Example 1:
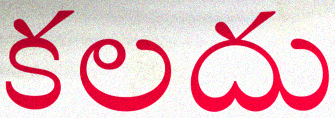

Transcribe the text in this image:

కలదు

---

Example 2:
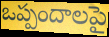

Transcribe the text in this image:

ఒప్పందాలపై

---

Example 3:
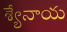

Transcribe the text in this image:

శ్యేనాయ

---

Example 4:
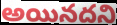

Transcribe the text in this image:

అయినదని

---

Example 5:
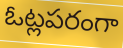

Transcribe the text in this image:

ఓట్లపరంగా